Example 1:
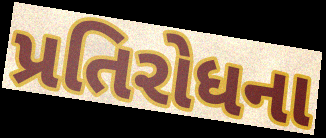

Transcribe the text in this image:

પ્રતિરોધના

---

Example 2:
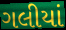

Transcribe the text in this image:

ગલીયાં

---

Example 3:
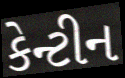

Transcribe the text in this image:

કેન્ટીન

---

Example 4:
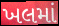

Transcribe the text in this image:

ખલમાં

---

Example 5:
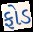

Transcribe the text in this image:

ફોડ